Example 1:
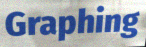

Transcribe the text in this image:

Graphing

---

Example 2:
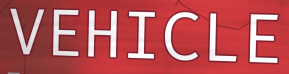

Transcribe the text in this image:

VEHICLE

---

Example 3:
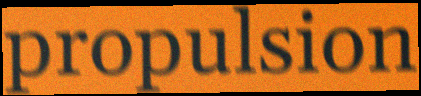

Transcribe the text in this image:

propulsion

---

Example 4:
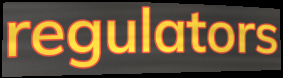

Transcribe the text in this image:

regulators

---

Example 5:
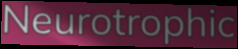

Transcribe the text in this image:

Neurotrophic